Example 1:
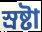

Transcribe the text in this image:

স্রষ্টা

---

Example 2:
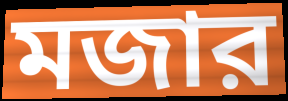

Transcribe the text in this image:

মজার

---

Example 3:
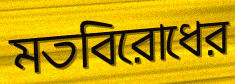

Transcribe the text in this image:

মতবিরোধের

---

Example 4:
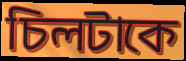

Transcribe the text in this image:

চিলটাকে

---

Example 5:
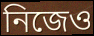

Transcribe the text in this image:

নিজেও